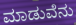
ಮಾಡುವೆನು